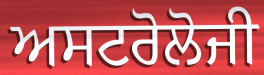
ਅਸਟਰੋਲੋਜੀ